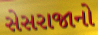
સેસરાજાનો